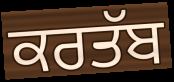
ਕਰਤੱਬ